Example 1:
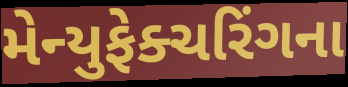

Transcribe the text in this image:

મેન્યુફેક્ચરિંગના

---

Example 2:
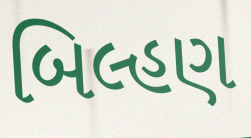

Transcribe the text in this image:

બિલ્હણ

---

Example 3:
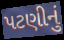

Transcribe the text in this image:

પટણીનું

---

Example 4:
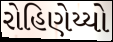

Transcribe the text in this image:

રોહિણેય્યો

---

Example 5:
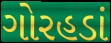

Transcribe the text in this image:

ગોરહડાં